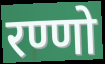
रण्णो